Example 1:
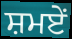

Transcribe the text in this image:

ਸ਼ਮਏਂ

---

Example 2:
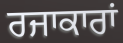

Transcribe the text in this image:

ਰਜਾਕਾਰਾਂ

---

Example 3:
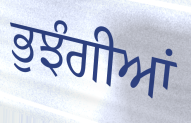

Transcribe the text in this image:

ਭੁਝੰਗੀਆਂ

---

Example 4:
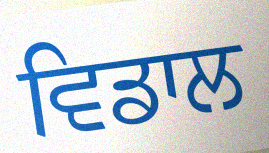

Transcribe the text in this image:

ਵਿਡਾਲ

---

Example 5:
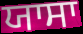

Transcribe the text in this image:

ਯਾਸਾ